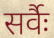
सर्वैः